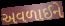
અવળાઈને